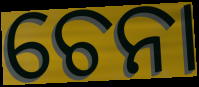
ଚେନା